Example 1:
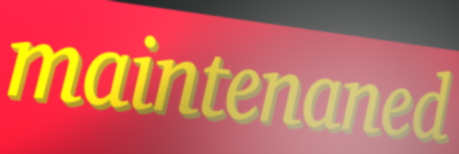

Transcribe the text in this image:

maintenaned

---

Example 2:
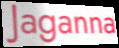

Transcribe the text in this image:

Jaganna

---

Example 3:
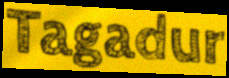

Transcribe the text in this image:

Tagadur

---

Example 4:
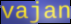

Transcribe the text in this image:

vajan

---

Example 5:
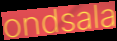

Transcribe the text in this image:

ondsala